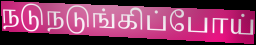
நடுநடுங்கிப்போய்